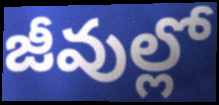
జీవుల్లో